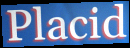
Placid